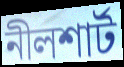
নীলশার্ট